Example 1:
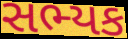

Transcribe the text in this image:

સભ્યક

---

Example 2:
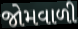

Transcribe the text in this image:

જોમવાળી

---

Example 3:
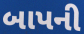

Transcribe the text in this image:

બાપની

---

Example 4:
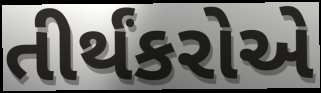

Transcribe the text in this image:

તીર્થંકરોએ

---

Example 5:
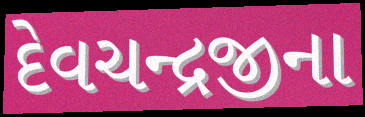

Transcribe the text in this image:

દેવચન્દ્રજીના